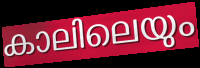
കാലിലെയും